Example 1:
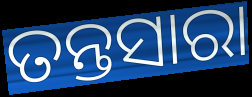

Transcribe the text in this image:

ତନ୍ତସାରା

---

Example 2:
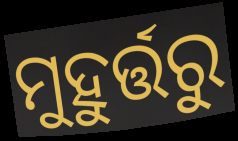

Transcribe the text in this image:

ମୁହୁର୍ତ୍ତରୁ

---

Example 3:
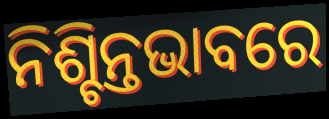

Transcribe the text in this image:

ନିଶ୍ଚିନ୍ତଭାବରେ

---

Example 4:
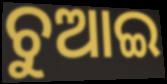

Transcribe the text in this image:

ଚୁଆଇ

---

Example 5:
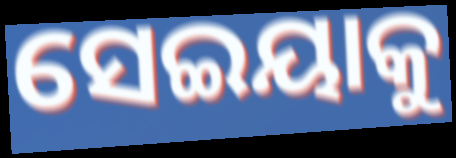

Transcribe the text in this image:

ସେଇୟାକୁ